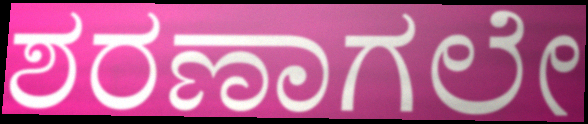
ಶರಣಾಗಲೇ